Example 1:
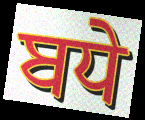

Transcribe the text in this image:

ਬਧੇ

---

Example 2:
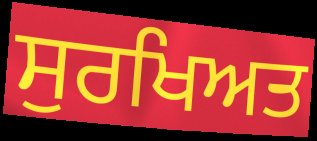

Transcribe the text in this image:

ਸੁਰਖਿਅਤ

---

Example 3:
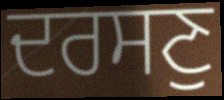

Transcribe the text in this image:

ਦਰਸਣੁ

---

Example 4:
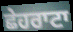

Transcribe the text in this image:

ਛੇਹਰਾਟਾ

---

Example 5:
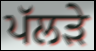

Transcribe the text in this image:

ਪੱਲੜੇ